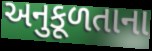
અનુકૂળતાના